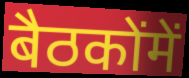
बैठकोंमें